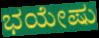
ಭಯೇಷು